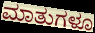
ಮಾತುಗಳೂ